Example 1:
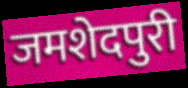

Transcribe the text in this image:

जमशेदपुरी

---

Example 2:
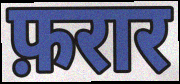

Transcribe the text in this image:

फ़रार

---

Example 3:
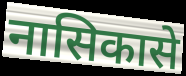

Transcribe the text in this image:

नासिकासे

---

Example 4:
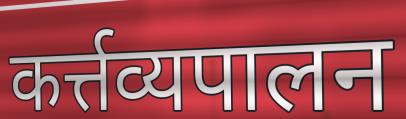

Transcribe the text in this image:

कर्त्तव्यपालन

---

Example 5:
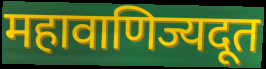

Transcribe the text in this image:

महावाणिज्यदूत